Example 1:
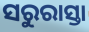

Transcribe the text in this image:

ସରୁରାସ୍ତା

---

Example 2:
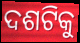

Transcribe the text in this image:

ଦଶଟିକୁ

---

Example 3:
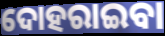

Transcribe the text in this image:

ଦୋହରାଇବା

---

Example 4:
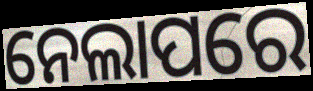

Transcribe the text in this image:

ନେଲାପରେ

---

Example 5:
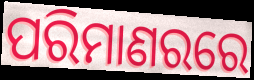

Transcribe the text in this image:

ପରିମାଣରରେ